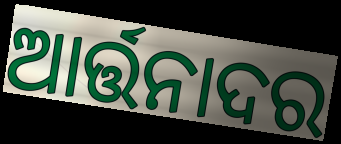
ଆର୍ତ୍ତନାଦର